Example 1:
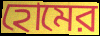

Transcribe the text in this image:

হোমের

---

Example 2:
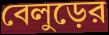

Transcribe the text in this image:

বেলুড়ের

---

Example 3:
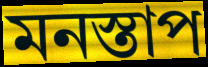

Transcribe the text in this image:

মনস্তাপ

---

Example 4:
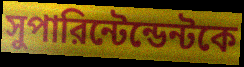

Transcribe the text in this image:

সুপারিন্টেন্ডেন্টকে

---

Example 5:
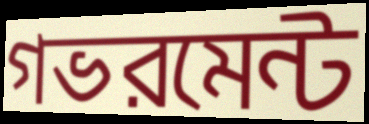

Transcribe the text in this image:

গভরমেন্ট